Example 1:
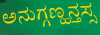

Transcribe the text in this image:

ಅನುಗ್ಗಣ್ಹನ್ತಸ್ಸ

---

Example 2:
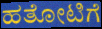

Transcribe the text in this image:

ಹತೋಟಿಗೆ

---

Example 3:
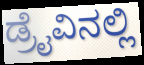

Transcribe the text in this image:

ಡ್ರೈವಿನಲ್ಲಿ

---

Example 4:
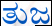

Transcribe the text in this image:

ತುಜ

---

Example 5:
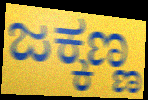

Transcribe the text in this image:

ಜಕ್ಕಣ್ಣ